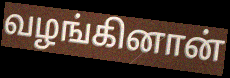
வழங்கினான்